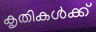
കൃതികൾക്ക്